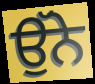
ਉੱਨੇ